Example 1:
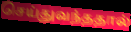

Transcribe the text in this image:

செய்துவந்ததால்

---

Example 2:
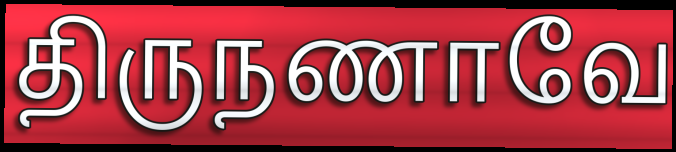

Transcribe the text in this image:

திருநணாவே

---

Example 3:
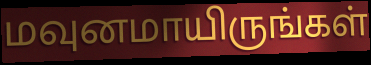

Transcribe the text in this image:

மவுனமாயிருங்கள்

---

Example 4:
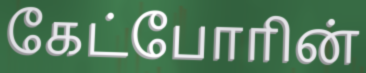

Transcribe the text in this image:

கேட்போரின்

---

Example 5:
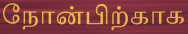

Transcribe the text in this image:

நோன்பிற்காக